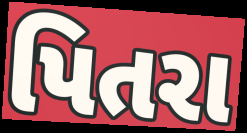
પિતરા